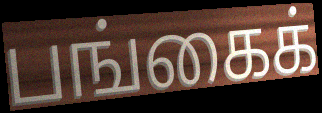
பங்கைக்